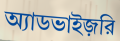
অ্যাডভাইজ়রি